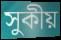
সুকীয়